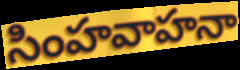
సింహవాహనా